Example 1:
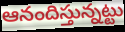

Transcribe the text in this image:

ఆనందిస్తున్నట్టు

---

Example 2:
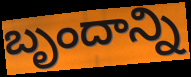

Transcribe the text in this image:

బృందాన్ని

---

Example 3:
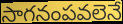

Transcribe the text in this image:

సాగనంపవలెనే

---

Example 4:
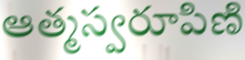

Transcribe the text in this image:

ఆత్మస్వరూపిణి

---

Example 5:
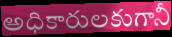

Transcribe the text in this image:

అధికారులకుగానీ